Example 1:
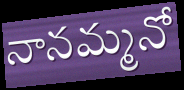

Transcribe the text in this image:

నానమ్మనో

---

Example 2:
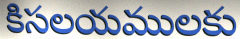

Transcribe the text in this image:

కిసలయములకు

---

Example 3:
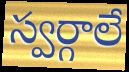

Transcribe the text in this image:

స్వర్గాలే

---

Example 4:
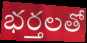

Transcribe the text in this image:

భర్తలతో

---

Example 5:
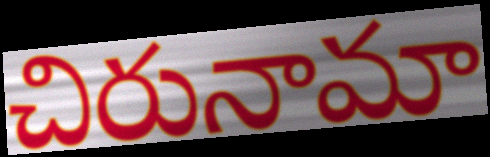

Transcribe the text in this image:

చిరునామా